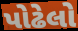
પોઢેલો